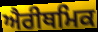
ਐਰੀਥਮਿਕ